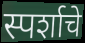
स्पर्शाचे